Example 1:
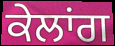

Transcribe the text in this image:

ਕੇਲਾਂਗ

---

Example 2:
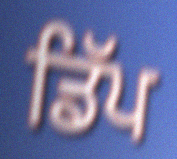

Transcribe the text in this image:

ਡਿੱਪ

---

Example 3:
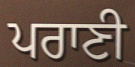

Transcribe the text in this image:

ਪਰਾਣੀ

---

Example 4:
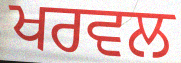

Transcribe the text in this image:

ਖਰਵਲ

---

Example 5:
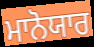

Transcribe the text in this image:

ਮਾਨੋਯਾਰ